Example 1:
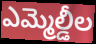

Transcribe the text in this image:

ఎమ్మెల్డీల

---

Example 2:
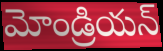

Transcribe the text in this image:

మోండ్రియన్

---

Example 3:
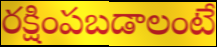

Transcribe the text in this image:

రక్షింపబడాలంటే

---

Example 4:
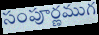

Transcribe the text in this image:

సంపూర్ణముగ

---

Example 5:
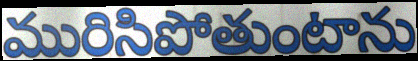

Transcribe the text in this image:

మురిసిపోతుంటాను